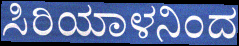
ಸಿರಿಯಾಳನಿಂದ